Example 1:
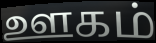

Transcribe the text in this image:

ஊகம்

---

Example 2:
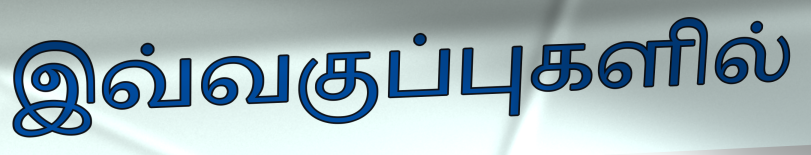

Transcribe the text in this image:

இவ்வகுப்புகளில்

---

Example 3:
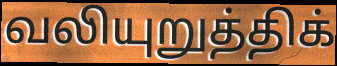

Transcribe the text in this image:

வலியுறுத்திக்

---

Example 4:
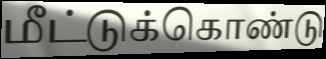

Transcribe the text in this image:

மீட்டுக்கொண்டு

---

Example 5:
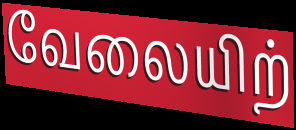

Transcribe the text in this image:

வேலையிற்